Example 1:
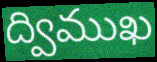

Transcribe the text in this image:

ద్విముఖ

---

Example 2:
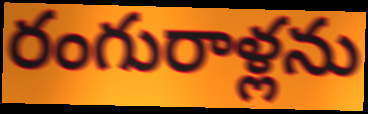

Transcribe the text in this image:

రంగురాళ్లను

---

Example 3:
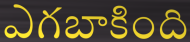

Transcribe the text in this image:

ఎగబాకింది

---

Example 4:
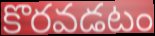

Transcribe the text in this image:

కొరవడటం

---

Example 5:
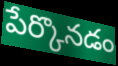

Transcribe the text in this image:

పేర్కొనడం